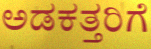
ಅಡಕತ್ತರಿಗೆ